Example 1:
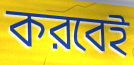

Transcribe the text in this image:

করবেই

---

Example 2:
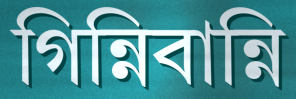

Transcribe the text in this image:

গিন্নিবান্নি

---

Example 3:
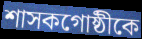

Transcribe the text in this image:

শাসকগোষ্ঠীকে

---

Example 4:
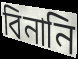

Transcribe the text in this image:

বিনানি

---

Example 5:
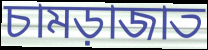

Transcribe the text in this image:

চামড়াজাত